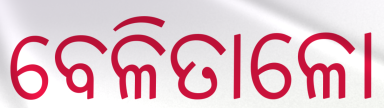
ବେଳିତାଳୋ